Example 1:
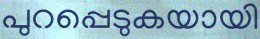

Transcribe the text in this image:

പുറപ്പെടുകയായി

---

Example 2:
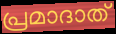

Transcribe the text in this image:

പ്രമാദാത്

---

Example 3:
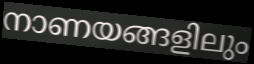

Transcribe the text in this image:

നാണയങ്ങളിലും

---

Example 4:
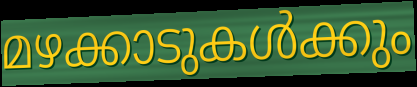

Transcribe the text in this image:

മഴക്കാടുകൾക്കും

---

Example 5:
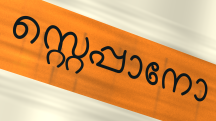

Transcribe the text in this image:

സ്റ്റെപ്പാനോ